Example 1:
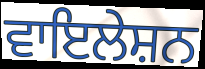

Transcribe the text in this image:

ਵਾਇਲੇਸ਼ਨ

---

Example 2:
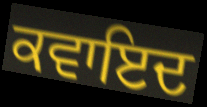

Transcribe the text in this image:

ਕਵਾਇਦ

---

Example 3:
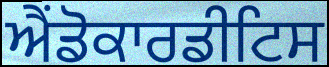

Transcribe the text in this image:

ਐਂਡੋਕਾਰਡੀਟਿਸ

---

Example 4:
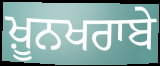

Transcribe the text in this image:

ਖ਼ੂਨਖਰਾਬੇ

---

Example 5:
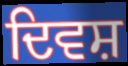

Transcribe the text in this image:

ਦਿਵਸ਼